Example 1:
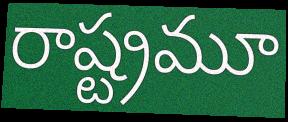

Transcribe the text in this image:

రాష్ట్రమూ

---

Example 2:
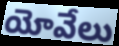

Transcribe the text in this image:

యోవేలు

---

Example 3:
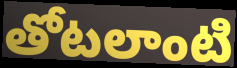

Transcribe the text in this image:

తోటలాంటి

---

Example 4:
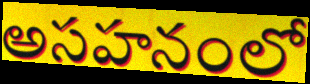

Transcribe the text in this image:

అసహనంలో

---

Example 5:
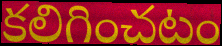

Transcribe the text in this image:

కలిగించటం